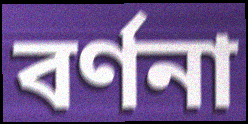
বর্ণনা